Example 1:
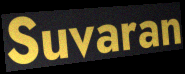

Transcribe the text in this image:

Suvaran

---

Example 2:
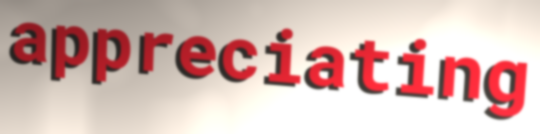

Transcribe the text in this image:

appreciating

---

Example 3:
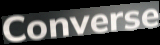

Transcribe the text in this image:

Converse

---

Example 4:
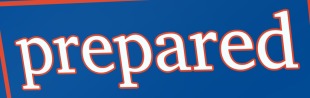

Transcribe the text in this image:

prepared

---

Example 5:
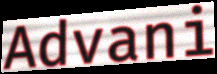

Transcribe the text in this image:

Advani